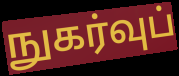
நுகர்வுப்